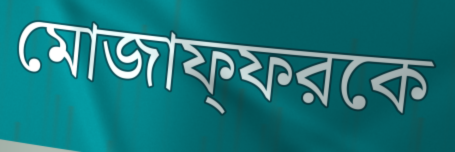
মোজাফ্ফরকে